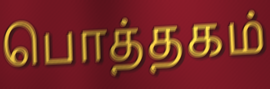
பொத்தகம்